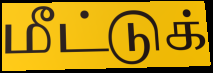
மீட்டுக்